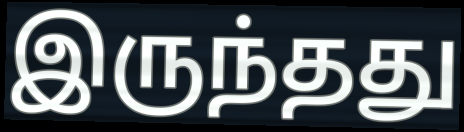
இருந்தது